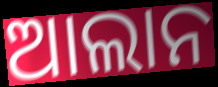
ଆଲାନ